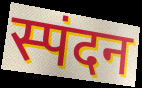
स्पंदन